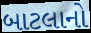
બાટલાનો